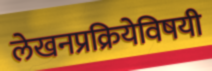
लेखनप्रक्रियेविषयी